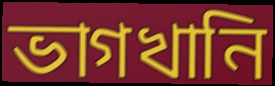
ভাগখানি